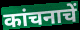
कांचनाचें